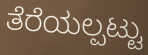
ತೆರೆಯಲ್ಪಟ್ಟು